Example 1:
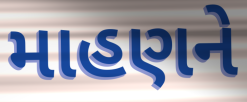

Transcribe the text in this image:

માહણને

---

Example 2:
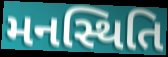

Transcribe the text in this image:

મનસ્થિતિ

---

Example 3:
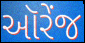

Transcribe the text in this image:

ઑરેંજ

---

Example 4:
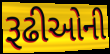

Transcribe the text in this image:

રૂઢીઓની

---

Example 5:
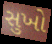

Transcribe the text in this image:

સુખો